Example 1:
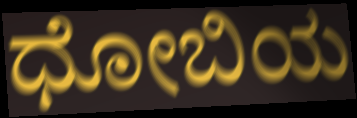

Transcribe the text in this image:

ಧೋಬಿಯ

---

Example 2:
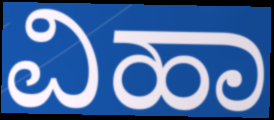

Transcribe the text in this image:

ವಿಹಾ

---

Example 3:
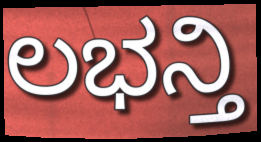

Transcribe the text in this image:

ಲಭನ್ತಿ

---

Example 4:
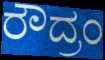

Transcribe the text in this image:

ರೌದ್ರಂ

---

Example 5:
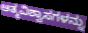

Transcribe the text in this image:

ಆತ್ಮವಿಶ್ವಾಸಗಳನ್ನು